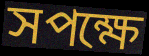
সপক্ষে